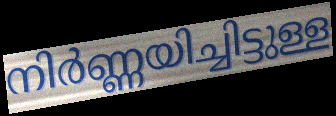
നിർണ്ണയിച്ചിട്ടുള്ള